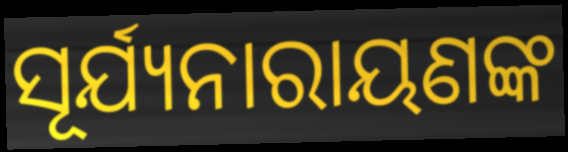
ସୂର୍ଯ୍ୟନାରାୟଣଙ୍କ